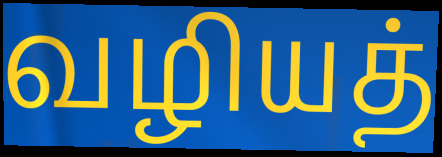
வழியத்